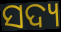
ସଦ୍ୟ